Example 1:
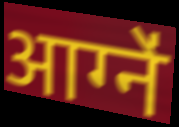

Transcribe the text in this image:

आग्ने॑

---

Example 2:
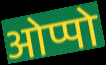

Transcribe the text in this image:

ओप्पो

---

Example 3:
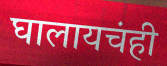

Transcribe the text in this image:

घालायचंही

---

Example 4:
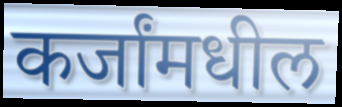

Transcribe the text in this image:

कर्जांमधील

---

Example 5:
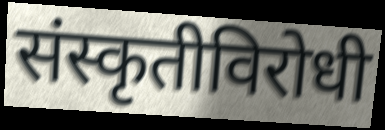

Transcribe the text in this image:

संस्कृतीविरोधी